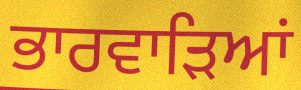
ਭਾਰਵਾੜਿਆਂ